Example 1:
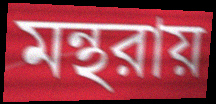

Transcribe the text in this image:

মন্থরায়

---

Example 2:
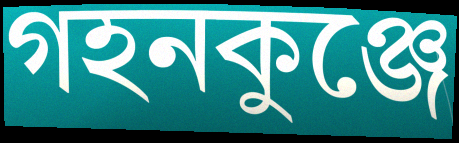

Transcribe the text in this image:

গহনকুঞ্জে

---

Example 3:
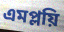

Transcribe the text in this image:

এমপ্লয়ি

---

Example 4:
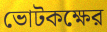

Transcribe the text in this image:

ভোটকক্ষের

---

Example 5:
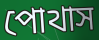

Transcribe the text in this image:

পোথাস